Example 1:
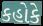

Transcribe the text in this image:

કહોકે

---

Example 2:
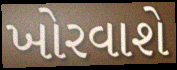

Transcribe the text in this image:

ખોરવાશે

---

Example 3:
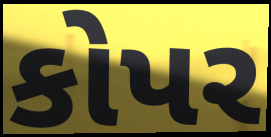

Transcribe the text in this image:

કોપર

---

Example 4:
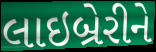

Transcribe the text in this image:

લાઇબ્રેરીને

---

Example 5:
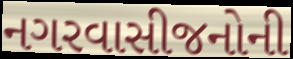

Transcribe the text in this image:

નગરવાસીજનોની